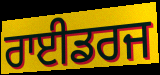
ਰਾਈਡਰਜ